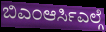
ಬಿಎಂಆರ್ಸಿಎಲ್ಗೆ